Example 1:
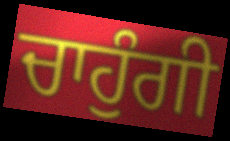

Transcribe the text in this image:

ਚਾਹੁੰਗੀ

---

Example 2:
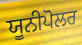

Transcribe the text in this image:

ਯੂਨੀਪੋਲਰ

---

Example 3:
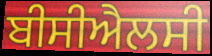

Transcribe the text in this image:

ਬੀਸੀਐਲਸੀ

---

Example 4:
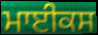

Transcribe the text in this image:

ਮਾਈਕਸ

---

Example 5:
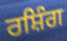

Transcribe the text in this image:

ਰਸ਼ਿੰਗ